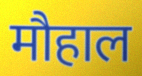
मौहाल